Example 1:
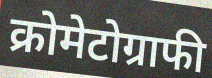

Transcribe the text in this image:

क्रोमेटोग्राफी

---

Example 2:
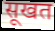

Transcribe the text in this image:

सूखत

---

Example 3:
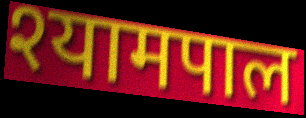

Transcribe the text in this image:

श्यामपाल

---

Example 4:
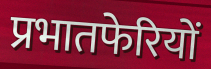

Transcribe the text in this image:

प्रभातफेरियों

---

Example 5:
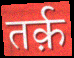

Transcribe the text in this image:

तर्क़